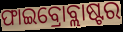
ଫାଇବ୍ରୋବ୍ଲାଷ୍ଟର